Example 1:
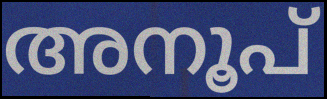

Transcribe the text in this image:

അനൂപ്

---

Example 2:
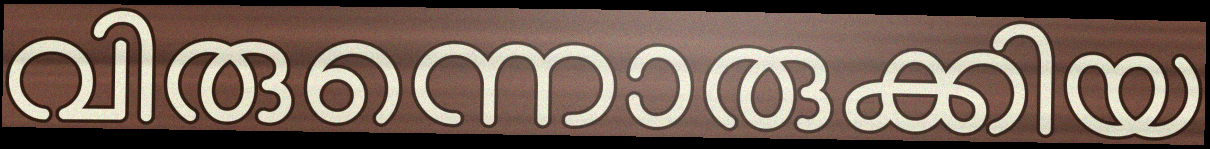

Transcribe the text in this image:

വിരുന്നൊരുക്കിയ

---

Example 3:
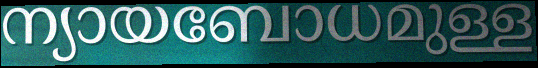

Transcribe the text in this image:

ന്യായബോധമുള്ള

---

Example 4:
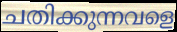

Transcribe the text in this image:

ചതിക്കുന്നവളെ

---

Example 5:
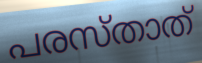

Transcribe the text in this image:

പരസ്താത്